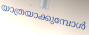
യാത്രയാക്കുമ്പോൾ